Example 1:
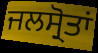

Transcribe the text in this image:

ਜਲਸ੍ਰੋਤਾਂ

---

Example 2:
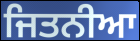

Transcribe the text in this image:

ਜਿਤਨੀਆ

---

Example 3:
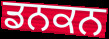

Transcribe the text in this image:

ਡਨਕਨ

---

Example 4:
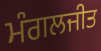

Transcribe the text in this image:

ਮੰਗਲਜੀਤ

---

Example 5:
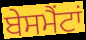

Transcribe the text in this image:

ਬੇਸਮੈਂਟਾਂ